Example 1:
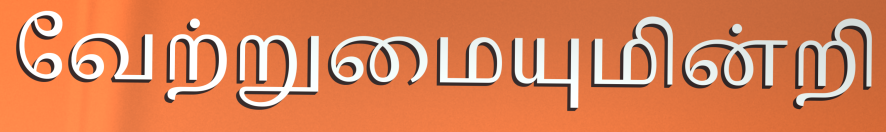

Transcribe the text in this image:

வேற்றுமையுமின்றி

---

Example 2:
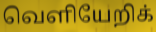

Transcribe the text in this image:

வெளியேறிக்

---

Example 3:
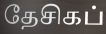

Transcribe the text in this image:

தேசிகப்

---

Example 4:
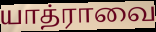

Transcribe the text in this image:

யாத்ராவை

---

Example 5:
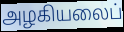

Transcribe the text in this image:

அழகியலைப்